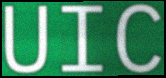
UIC